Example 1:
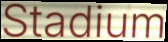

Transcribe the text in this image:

Stadium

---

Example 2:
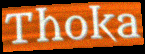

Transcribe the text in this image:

Thoka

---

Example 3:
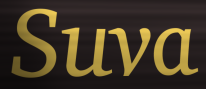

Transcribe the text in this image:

Suva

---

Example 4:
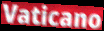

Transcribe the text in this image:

Vaticano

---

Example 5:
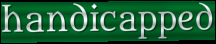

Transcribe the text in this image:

handicapped